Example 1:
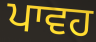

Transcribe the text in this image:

ਪਾਵਹ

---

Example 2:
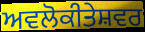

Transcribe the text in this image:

ਅਵਲੋਕੀਤੇਸ਼ਵਰ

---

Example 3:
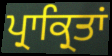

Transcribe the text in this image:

ਪ੍ਰਾਕ੍ਰਿਤਾਂ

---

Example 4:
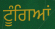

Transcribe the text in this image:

ਟੂੰਗਿਆਂ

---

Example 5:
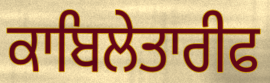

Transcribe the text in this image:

ਕਾਬਿਲੇਤਾਰੀਫ